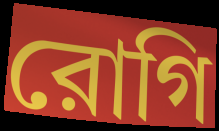
রোগি